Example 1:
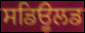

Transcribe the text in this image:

ਸਡਿਊਲਡ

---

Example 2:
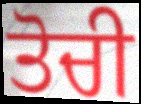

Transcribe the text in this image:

ਤੋਚੀ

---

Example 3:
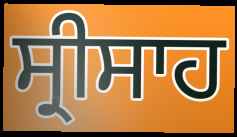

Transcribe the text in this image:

ਸ੍ਰੀਸਾਹ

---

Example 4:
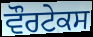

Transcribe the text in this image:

ਵੌਰਟੇਕਸ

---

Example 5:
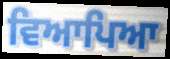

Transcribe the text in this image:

ਵਿਆਪਿਆ